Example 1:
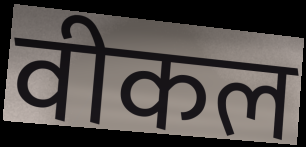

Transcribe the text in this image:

वीकल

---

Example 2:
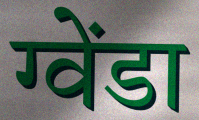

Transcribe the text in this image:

ग्वेंडा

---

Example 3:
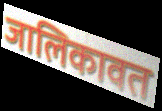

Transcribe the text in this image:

जालिकावत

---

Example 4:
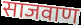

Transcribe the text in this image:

साजवाण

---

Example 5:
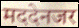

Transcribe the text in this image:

मददेनजर